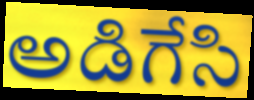
అడిగేసి